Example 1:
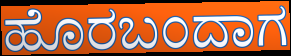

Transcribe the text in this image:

ಹೊರಬಂದಾಗ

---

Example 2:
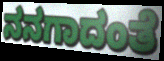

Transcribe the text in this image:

ನನಗಾದಂತೆ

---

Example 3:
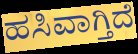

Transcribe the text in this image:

ಹಸಿವಾಗ್ತಿದೆ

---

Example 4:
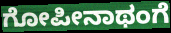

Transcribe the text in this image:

ಗೋಪೀನಾಥಂಗೆ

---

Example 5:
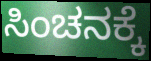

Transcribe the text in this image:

ಸಿಂಚನಕ್ಕೆ